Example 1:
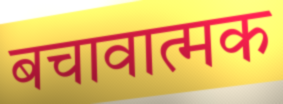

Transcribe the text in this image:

बचावात्मक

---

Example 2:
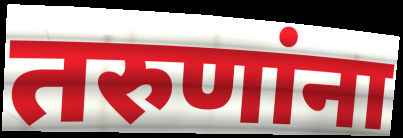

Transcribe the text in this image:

तरुणांना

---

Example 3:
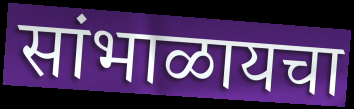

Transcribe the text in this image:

सांभाळायचा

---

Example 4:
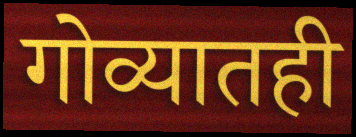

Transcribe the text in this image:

गोव्यातही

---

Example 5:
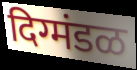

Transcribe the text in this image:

दिग्मंडळ